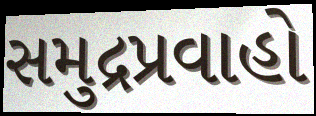
સમુદ્રપ્રવાહો